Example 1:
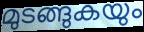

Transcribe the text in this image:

മുടങ്ങുകയും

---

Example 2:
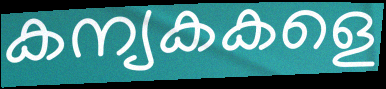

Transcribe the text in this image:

കന്യകകളെ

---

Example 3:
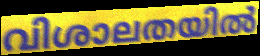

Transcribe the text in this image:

വിശാലതയിൽ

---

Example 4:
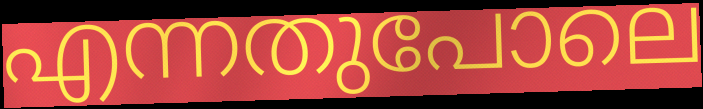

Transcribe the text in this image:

എന്നതുപോലെ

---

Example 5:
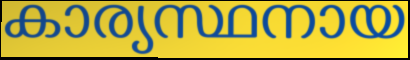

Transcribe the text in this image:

കാര്യസ്ഥനായ